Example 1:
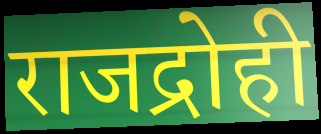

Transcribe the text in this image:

राजद्रोही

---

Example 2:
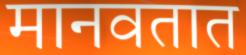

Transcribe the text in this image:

मानवतात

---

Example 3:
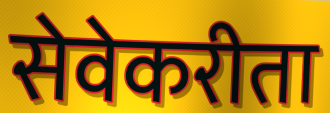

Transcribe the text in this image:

सेवेकरीता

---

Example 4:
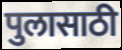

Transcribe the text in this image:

पुलासाठी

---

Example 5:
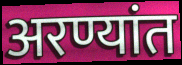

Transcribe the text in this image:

अरण्यांत